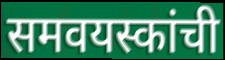
समवयस्कांची